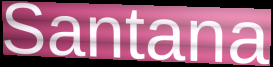
Santana